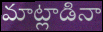
మాట్లాడినా